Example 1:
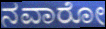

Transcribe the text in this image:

ನವಾರೋ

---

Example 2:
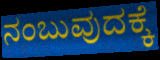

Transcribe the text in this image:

ನಂಬುವುದಕ್ಕೆ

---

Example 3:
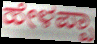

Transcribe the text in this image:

ಹೇಳಪ್ಪಾ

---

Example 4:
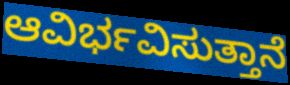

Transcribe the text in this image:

ಆವಿರ್ಭವಿಸುತ್ತಾನೆ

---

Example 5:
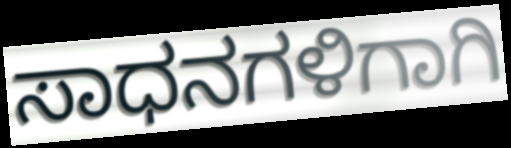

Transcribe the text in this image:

ಸಾಧನಗಳಿಗಾಗಿ